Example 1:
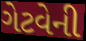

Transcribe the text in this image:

ગેટવેની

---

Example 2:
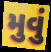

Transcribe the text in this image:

મુવું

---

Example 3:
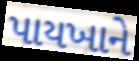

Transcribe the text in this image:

પાયખાને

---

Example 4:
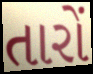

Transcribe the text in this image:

તારોં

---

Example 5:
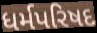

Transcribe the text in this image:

ધર્મપરિષદ